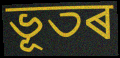
ভূতৰ